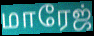
மாரேஜ்